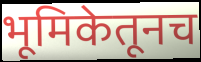
भूमिकेतूनच